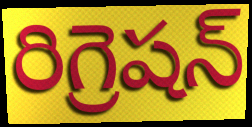
రిగ్రెషన్